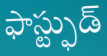
ఫాస్ట్ఫుడ్